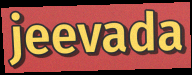
jeevada